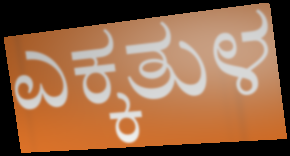
ಎಕ್ಕತುಳ